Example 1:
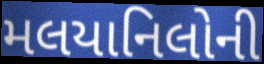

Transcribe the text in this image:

મલયાનિલોની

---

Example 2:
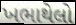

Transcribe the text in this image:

ખભાથેલો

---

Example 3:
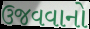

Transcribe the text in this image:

ઉજવવાનો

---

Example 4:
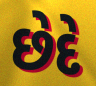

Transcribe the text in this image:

છેદે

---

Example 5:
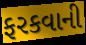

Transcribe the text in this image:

ફરકવાની